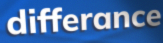
differance